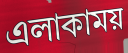
এলাকাময়